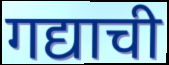
गद्याची